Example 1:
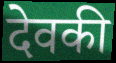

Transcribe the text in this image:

देवकी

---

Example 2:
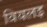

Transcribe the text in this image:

वियलइ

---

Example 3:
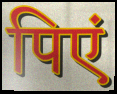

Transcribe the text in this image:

पिएं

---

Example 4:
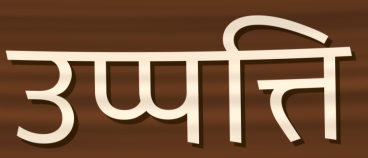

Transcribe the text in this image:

उप्पत्ति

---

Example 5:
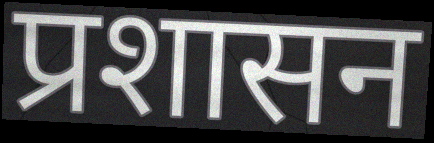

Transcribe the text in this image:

प्रशासन